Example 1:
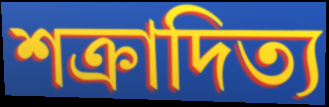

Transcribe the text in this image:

শক্রাদিত্য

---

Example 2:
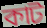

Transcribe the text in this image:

কাট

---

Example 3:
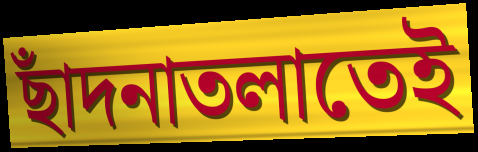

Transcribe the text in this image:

ছাঁদনাতলাতেই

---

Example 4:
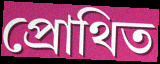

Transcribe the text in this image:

প্রোথিত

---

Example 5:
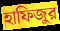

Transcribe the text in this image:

হাফিজুর